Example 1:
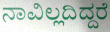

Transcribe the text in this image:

ನಾವಿಲ್ಲದಿದ್ದರೆ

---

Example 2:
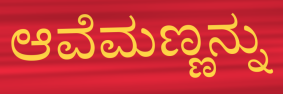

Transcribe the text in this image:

ಆವೆಮಣ್ಣನ್ನು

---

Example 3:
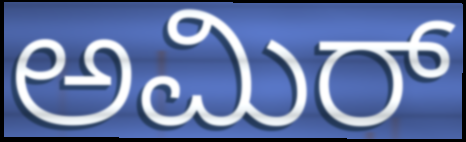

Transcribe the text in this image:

ಅಮಿರ್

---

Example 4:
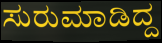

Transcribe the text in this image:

ಸುರುಮಾಡಿದ್ದ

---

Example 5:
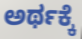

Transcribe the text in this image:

ಅರ್ಥಕ್ಕೆ